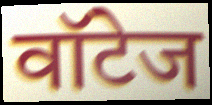
वॉटेज